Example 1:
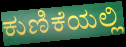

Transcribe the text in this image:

ಕುಣಿಕೆಯಲ್ಲಿ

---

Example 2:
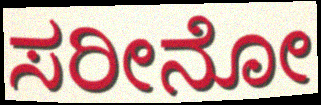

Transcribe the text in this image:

ಸರೀನೋ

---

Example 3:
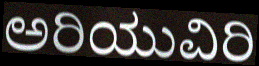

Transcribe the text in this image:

ಅರಿಯುವಿರಿ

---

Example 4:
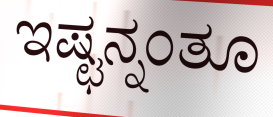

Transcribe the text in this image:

ಇಷ್ಟನ್ನಂತೂ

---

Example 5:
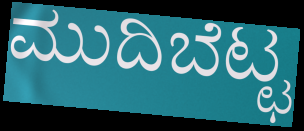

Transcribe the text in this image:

ಮುದಿಬೆಟ್ಟ